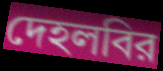
দেহলবির